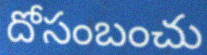
దోసంబంచు